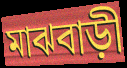
মাঝবাড়ী